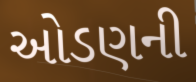
ઓડણની